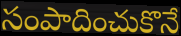
సంపాదించుకొనే